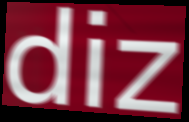
diz